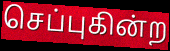
செப்புகின்ற